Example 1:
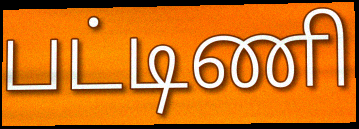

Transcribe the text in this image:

பட்டிணி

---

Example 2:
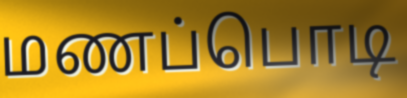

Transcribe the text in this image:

மணப்பொடி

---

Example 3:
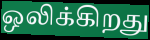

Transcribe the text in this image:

ஒலிக்கிறது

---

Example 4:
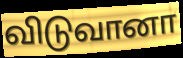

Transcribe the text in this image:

விடுவானா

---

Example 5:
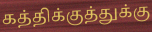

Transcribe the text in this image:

கத்திக்குத்துக்கு